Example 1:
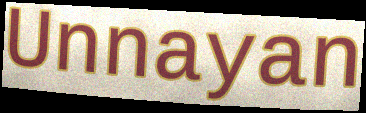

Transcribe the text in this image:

Unnayan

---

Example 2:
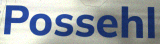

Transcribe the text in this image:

Possehl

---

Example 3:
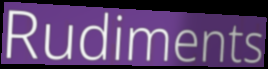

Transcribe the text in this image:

Rudiments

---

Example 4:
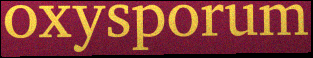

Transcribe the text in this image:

oxysporum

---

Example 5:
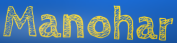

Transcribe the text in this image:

Manohar